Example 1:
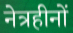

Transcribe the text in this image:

नेत्रहीनों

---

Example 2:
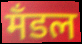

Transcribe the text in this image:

मँडल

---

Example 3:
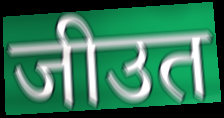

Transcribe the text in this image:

जीउत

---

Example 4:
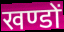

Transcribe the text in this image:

खण्डों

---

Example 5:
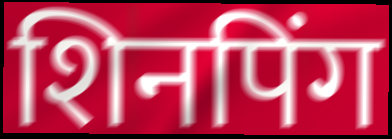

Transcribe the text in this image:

शिनपिंग